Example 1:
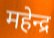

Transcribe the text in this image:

महेन्द्र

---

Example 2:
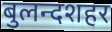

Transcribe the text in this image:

बुलन्दशहर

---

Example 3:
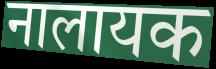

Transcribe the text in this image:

नालायक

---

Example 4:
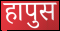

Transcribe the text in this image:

हापुस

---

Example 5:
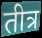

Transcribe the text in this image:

तीत्र